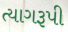
ત્યાગરૂપી